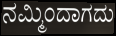
ನಮ್ಮಿಂದಾಗದು